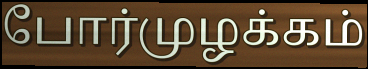
போர்முழக்கம்